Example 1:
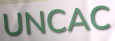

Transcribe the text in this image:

UNCAC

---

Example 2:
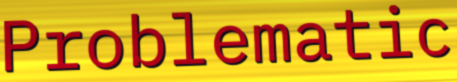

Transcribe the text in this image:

Problematic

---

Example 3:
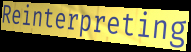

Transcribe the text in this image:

Reinterpreting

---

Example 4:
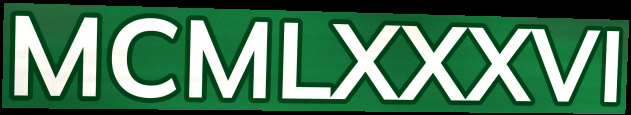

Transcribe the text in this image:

MCMLXXXVI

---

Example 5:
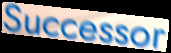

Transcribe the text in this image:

Successor